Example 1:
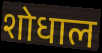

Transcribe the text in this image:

शोधाल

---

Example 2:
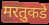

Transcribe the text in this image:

मरतुकडे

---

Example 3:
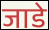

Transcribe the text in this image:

जाडे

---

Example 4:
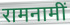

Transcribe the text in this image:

रामनामीं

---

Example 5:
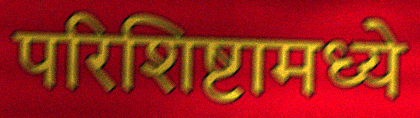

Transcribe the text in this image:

परिशिष्टामध्ये